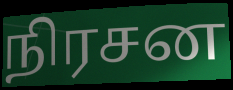
நிரசன